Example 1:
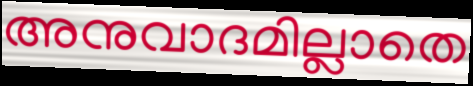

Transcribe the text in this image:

അനുവാദമില്ലാതെ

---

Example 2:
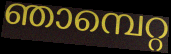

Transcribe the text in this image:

ഞാമ്പെറ്റ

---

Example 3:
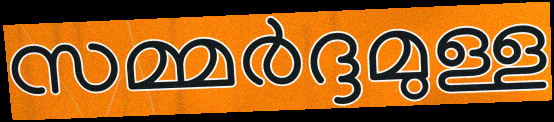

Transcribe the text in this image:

സമ്മർദ്ദമുള്ള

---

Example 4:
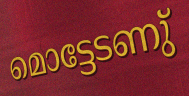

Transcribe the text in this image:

മൊട്ടേടണു്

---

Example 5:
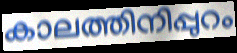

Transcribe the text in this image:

കാലത്തിനിപ്പുറം